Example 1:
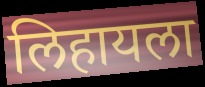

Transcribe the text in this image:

लिहायला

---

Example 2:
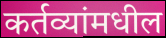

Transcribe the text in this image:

कर्तव्यांमधील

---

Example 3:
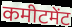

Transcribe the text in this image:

कमीटमेंट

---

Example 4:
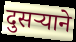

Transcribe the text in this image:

दुसऱ्याने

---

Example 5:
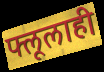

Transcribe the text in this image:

फ्लूलाही